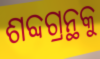
ଶବ୍ଦଗ୍ରନ୍ଥକୁ